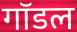
गॉडल